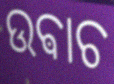
ଉଵାଚ